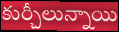
కుర్చీలున్నాయి